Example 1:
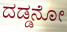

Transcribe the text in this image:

ದಡ್ಡನೋ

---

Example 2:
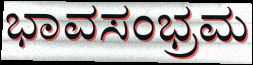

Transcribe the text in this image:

ಭಾವಸಂಭ್ರಮ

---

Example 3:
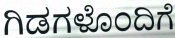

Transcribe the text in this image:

ಗಿಡಗಳೊಂದಿಗೆ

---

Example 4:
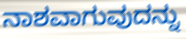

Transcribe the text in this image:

ನಾಶವಾಗುವುದನ್ನು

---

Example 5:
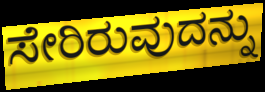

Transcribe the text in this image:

ಸೇರಿರುವುದನ್ನು